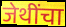
जेथींचा